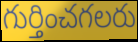
గుర్తించగలరు